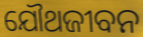
ଯୌଥଜୀବନ